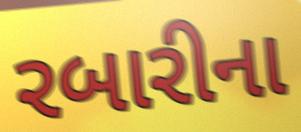
રબારીના